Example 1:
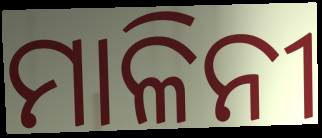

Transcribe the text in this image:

ମାଳିନୀ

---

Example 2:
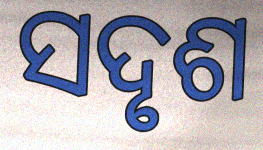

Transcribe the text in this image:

ସଦୃଶ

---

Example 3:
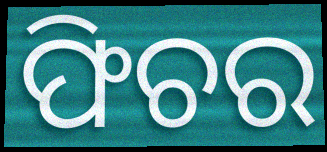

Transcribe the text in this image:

ଫିଚର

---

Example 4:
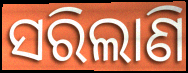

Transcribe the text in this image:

ସରିଲାଣି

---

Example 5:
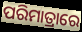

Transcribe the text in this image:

ପରିମାତ୍ରାରେ